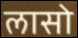
लासो